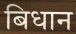
बिधान